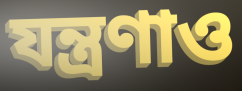
যন্ত্রণাও